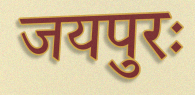
जयपुरः